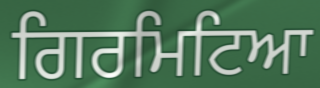
ਗਿਰਮਿਟਿਆ